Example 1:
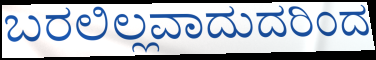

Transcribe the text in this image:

ಬರಲಿಲ್ಲವಾದುದರಿಂದ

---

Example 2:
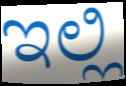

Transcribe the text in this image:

ಇಲ್ಲಿ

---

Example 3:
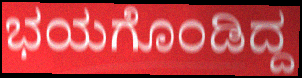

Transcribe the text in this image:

ಭಯಗೊಂಡಿದ್ದ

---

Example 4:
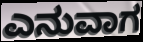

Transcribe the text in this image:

ಎನುವಾಗ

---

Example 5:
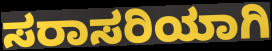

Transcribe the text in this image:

ಸರಾಸರಿಯಾಗಿ